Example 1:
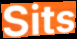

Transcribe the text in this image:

Sits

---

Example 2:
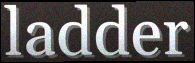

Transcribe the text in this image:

ladder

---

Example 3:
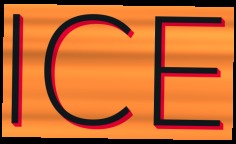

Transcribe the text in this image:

ICE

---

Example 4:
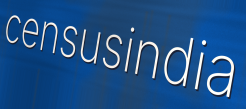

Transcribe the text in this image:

censusindia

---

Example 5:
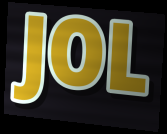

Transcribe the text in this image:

JOL